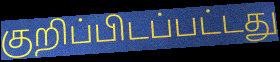
குறிப்பிடப்பட்டது